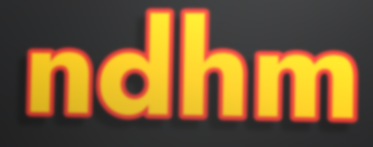
ndhm